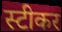
स्टीकर